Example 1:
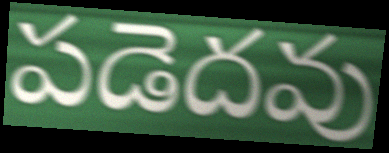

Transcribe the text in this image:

పడెదవు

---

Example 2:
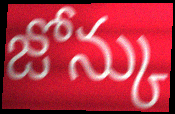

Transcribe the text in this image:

జోన్కు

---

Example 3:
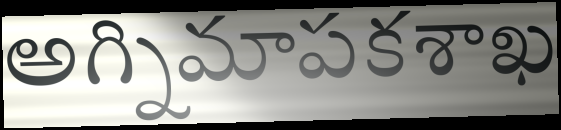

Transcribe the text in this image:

అగ్నిమాపకశాఖ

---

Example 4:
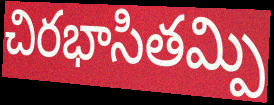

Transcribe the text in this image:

చిరభాసితమ్పి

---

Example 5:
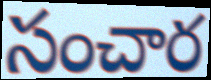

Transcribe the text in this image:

సంచార